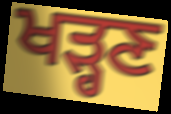
ਖੜ੍ਹਣ